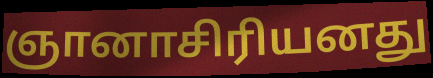
ஞானாசிரியனது